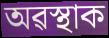
অৱস্থাক